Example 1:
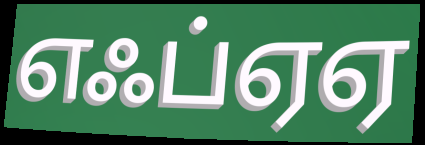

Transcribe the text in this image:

எஃப்ஏஏ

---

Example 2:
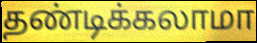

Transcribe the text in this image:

தண்டிக்கலாமா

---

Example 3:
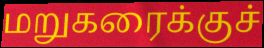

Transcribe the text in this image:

மறுகரைக்குச்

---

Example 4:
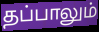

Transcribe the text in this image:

தப்பாலும்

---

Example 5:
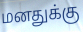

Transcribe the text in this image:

மனதுக்கு